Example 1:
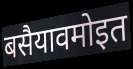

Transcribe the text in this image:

बसैयावमोइत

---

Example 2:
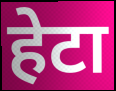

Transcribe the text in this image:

हेटा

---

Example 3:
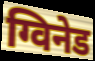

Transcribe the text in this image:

ग्विनेड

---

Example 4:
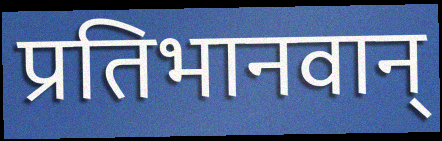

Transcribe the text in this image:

प्रतिभानवान्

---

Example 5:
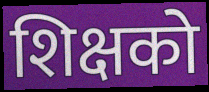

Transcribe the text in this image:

शिक्षको